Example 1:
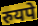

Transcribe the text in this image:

रुयपे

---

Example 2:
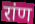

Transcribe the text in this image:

रांण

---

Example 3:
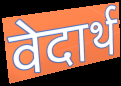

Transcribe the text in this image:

वेदार्थ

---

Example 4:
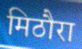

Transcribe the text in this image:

मिठौरा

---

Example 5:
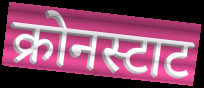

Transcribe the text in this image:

क्रोनस्टाट